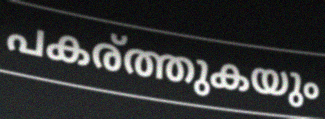
പകര്ത്തുകയും